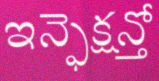
ఇన్ఫెక్షన్తో